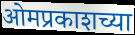
ओमप्रकाशच्या